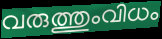
വരുത്തുംവിധം